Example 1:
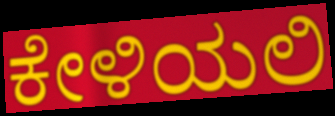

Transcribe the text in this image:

ಕೇಳಿಯಲಿ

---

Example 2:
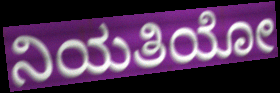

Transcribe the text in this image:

ನಿಯತಿಯೋ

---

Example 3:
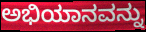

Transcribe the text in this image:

ಅಭಿಯಾನವನ್ನು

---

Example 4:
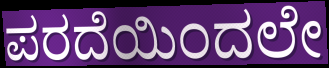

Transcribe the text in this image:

ಪರದೆಯಿಂದಲೇ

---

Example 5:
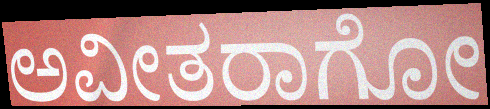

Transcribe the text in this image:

ಅವೀತರಾಗೋ